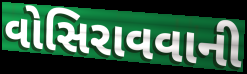
વોસિરાવવાની